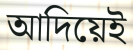
আদিয়েই